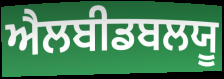
ਐਲਬੀਡਬਲਯੂ